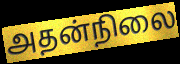
அதன்நிலை